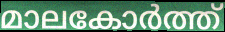
മാലകോർത്ത്